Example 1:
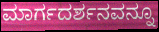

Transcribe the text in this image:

ಮಾರ್ಗದರ್ಶನವನ್ನೂ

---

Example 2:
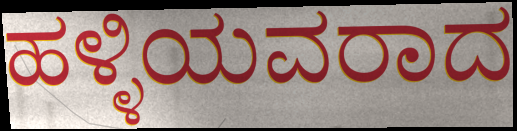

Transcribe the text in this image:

ಹಳ್ಳಿಯವರಾದ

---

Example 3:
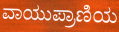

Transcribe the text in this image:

ವಾಯುಪ್ರಾಣಿಯ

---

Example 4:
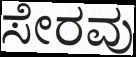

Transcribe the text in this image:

ಸೇರವು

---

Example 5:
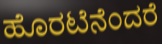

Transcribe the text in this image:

ಹೊರಟೆನೆಂದರೆ